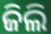
ଜିଲି